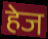
हेज